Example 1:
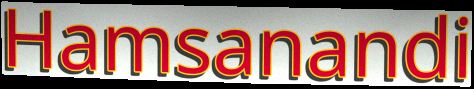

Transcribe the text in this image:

Hamsanandi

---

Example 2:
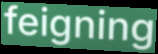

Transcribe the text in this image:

feigning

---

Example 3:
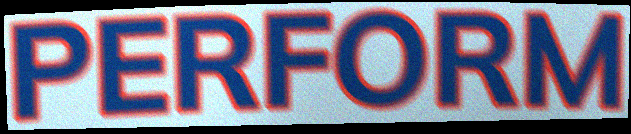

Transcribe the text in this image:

PERFORM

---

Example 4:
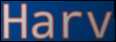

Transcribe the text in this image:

Harv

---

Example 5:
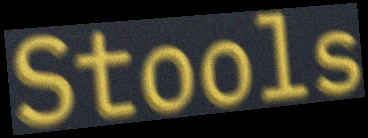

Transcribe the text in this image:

Stools